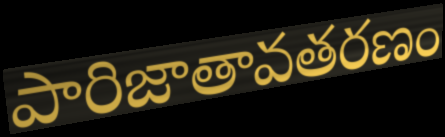
పారిజాతావతరణం